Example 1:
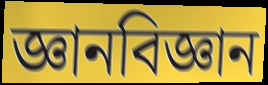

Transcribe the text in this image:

জ্ঞানবিজ্ঞান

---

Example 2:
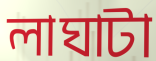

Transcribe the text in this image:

লাঘাটা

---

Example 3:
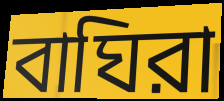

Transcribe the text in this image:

বাঘিরা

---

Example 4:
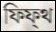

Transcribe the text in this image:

ফিফ্থ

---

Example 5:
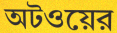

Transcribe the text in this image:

অটওয়ের